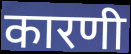
कारणी